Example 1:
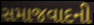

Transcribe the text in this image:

સમાજવાદની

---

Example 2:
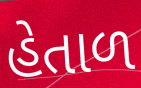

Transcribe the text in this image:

હેતાળ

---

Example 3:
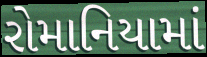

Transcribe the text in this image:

રોમાનિયામાં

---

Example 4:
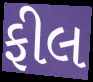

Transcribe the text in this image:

ફીલ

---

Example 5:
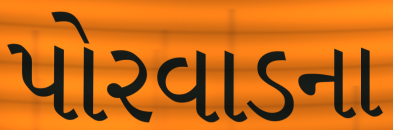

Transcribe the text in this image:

પોરવાડના